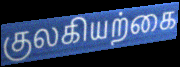
குலகியற்கை